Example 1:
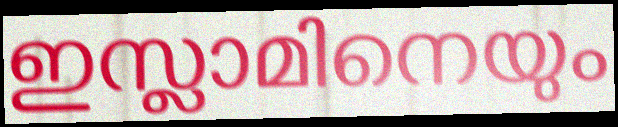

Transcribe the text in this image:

ഇസ്ലാമിനെയും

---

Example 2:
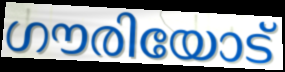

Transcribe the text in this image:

ഗൗരിയോട്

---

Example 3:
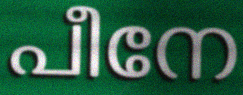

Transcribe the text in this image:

പീനേ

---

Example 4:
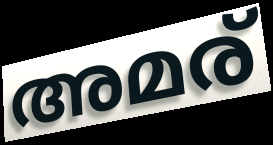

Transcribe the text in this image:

അമര്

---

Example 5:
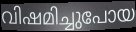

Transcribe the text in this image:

വിഷമിച്ചുപോയ